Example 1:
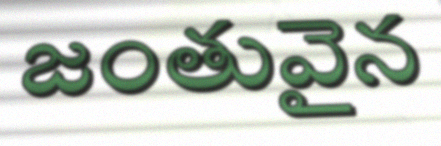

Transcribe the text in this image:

జంతువైన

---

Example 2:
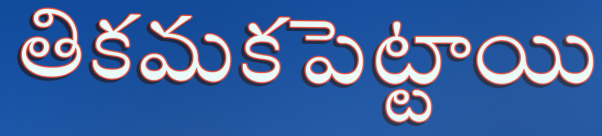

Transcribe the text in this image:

తికమకపెట్టాయి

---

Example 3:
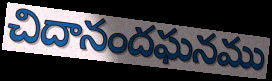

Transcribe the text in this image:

చిదానందఘనము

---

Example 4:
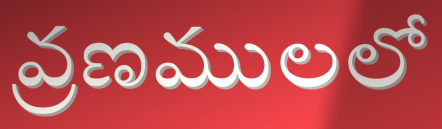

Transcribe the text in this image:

వ్రణములలో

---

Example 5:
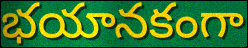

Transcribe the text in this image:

భయానకంగా